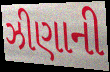
ઝીણાની